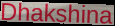
Dhakshina